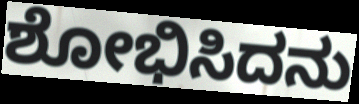
ಶೋಭಿಸಿದನು